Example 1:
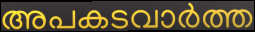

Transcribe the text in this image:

അപകടവാർത്ത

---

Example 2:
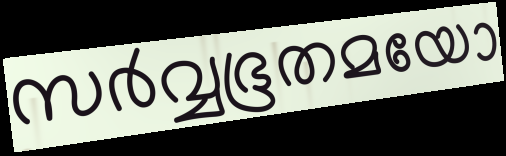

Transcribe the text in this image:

സർവ്വഭൂതമയോ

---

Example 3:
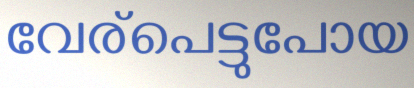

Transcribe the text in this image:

വേര്പെട്ടുപോയ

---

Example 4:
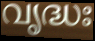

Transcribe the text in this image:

വൃദ്ധഃ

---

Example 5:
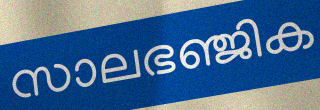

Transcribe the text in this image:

സാലഭഞ്ജിക